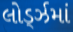
લોર્ડ્ઝમાં